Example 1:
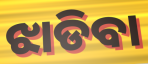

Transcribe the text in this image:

ଝାଡିବା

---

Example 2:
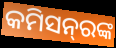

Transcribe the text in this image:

କମିସନ୍‍ରଙ୍କ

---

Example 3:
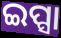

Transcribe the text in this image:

ଇପ୍ସା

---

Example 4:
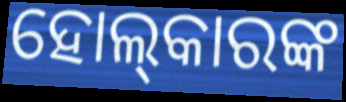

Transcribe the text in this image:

ହୋଲ୍‍କାରଙ୍କ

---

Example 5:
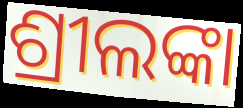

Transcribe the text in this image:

ଶ୍ରୀଲଙ୍କା